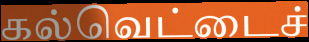
கல்வெட்டைச்